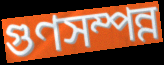
গুণসম্পন্ন